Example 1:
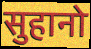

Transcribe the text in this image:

सुहानो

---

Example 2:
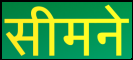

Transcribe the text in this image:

सीमने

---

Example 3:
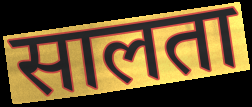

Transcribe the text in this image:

सालता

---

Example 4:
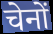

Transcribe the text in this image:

चेनों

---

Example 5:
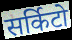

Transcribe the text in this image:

सर्किटो